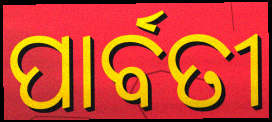
ପାର୍ବତୀ